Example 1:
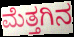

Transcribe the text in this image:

ಮೆತ್ತಗಿನ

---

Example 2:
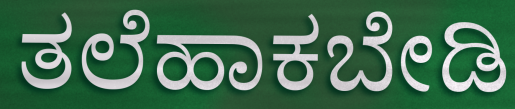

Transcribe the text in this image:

ತಲೆಹಾಕಬೇಡಿ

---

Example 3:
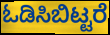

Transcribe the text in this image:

ಓಡಿಸಿಬಿಟ್ಟರೆ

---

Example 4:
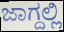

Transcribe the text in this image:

ಜಾಗ್ದಲ್ಲಿ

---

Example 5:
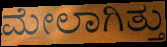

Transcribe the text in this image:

ಮೇಲಾಗಿತ್ತು